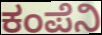
ಕಂಪೆನಿ